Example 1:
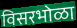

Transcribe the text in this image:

विसरभोळा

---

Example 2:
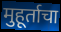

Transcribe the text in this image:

मुहूर्ताचा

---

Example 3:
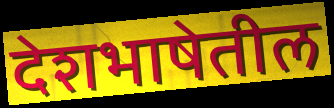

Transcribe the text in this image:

देशभाषेतील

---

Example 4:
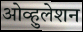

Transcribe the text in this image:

ओव्हुलेशन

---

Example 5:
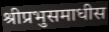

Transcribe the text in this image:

श्रीप्रभुसमाधीस